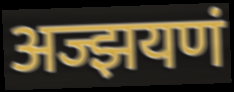
अज्झयणं